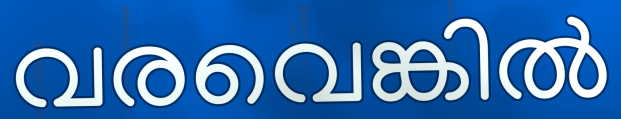
വരവെങ്കിൽ